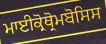
ਮਾਈਕ੍ਰੋਥ੍ਰੋਮਬੋਸਿਸ